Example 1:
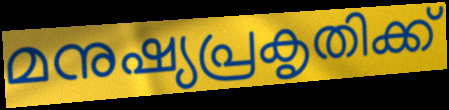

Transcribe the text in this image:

മനുഷ്യപ്രകൃതിക്ക്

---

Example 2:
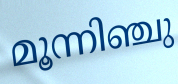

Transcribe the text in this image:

മൂന്നിഞ്ചു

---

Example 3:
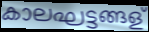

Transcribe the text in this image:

കാലഘട്ടങ്ങള്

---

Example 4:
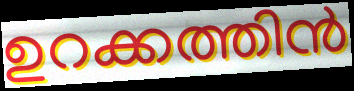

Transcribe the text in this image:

ഉറക്കത്തിൻ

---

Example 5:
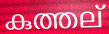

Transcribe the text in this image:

കുത്തല്